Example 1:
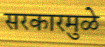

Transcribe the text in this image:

सरकारमुळे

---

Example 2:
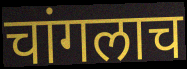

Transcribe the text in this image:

चांगलाच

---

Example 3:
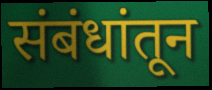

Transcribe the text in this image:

संबंधांतून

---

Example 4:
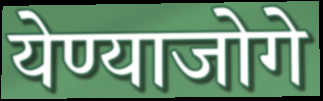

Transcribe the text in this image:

येण्याजोगे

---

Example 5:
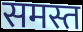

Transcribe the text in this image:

समस्त